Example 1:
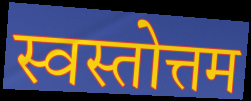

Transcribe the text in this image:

स्वस्तोत्तम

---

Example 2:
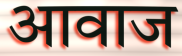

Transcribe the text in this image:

आवाज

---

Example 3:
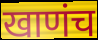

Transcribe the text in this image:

खाणंच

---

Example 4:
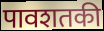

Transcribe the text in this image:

पावशतकी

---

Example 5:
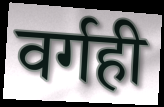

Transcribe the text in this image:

वर्गही